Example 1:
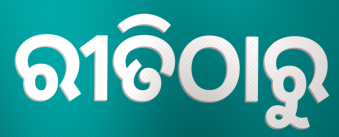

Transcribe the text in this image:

ରୀତିଠାରୁ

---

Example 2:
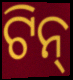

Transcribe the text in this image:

ଟିନ୍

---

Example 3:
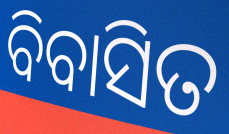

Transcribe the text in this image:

ବିବାସିତ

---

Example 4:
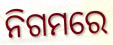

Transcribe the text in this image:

ନିଗମରେ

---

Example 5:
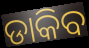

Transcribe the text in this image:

ଡାକିବ